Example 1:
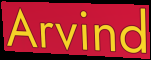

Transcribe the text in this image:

Arvind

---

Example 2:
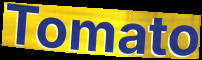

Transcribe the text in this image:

Tomato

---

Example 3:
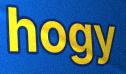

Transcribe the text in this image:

hogy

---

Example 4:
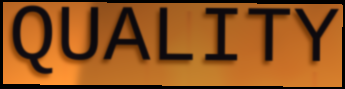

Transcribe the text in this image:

QUALITY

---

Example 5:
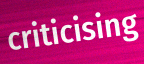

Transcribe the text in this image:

criticising